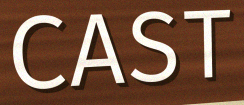
CAST